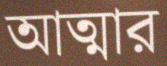
আত্মার